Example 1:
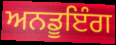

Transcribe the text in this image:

ਅਨਡੂਇੰਗ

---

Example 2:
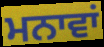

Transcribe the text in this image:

ਮਨਾਵਾਂ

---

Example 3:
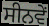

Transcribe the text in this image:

ਸੀਨਵੇਂ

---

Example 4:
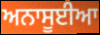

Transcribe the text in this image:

ਅਨਾਸੂਈਆ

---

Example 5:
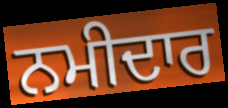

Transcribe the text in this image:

ਨਮੀਦਾਰ